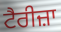
ਟੈਰੀਜ਼ਾ